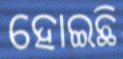
ହୋଇଛି